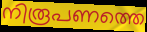
നിരൂപണത്തെ